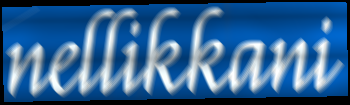
nellikkani